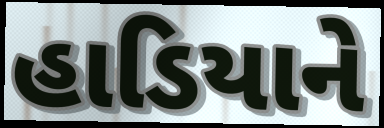
હાડિયાને